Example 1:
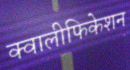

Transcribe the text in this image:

क्वालीफिकेशन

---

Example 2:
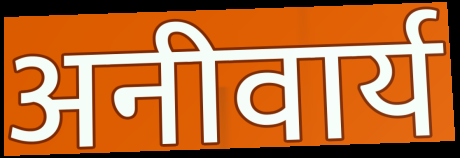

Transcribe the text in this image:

अनीवार्य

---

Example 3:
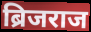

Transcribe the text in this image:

ब्रिजराज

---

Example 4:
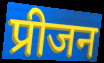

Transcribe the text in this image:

प्रीजन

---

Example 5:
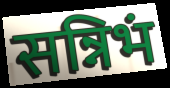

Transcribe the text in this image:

सन्निभं